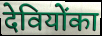
देवियोंका